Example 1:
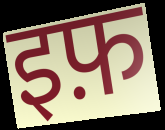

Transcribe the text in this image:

इफ़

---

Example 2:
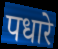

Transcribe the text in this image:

पधारे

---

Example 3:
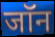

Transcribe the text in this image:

जॉन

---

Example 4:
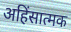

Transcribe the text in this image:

अहिंसात्मक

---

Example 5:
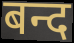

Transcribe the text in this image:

बन्द